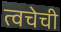
त्वचेची